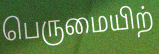
பெருமையிற்